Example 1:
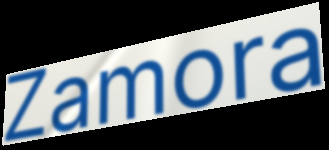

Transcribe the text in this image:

Zamora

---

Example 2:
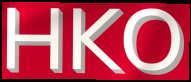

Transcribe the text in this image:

HKO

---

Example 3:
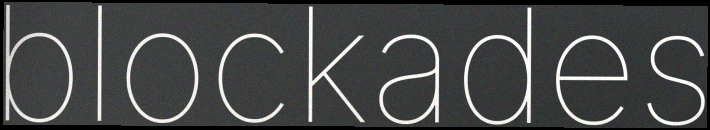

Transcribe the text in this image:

blockades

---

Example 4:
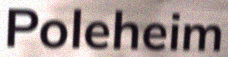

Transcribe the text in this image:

Poleheim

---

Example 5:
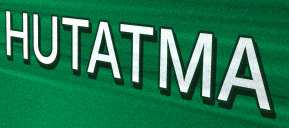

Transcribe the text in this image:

HUTATMA